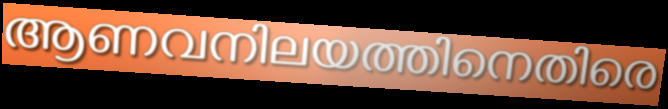
ആണവനിലയത്തിനെതിരെ